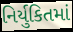
નિર્યુકિતમાં